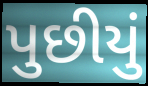
પુછીયું